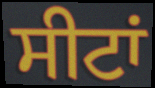
ਸੀਟਾਂ